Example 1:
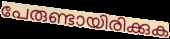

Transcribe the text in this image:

പേരുണ്ടായിരിക്കുക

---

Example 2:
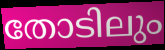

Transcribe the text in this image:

തോടിലും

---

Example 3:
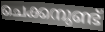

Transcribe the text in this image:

ചെക്കനുണ്ട്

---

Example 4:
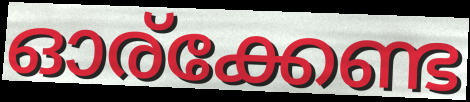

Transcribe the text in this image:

ഓര്ക്കേണ്ട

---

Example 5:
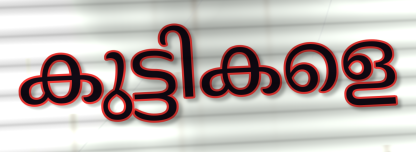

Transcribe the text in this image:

കുട്ടികളെ